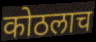
कोठलाच